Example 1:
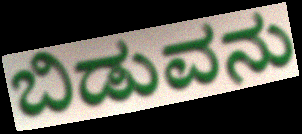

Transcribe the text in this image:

ಬಿಡುವನು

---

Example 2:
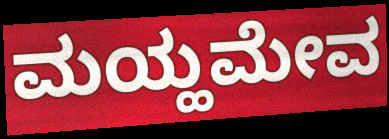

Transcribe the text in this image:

ಮಯ್ಹಮೇವ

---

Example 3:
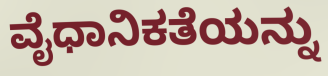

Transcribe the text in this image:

ವೈಧಾನಿಕತೆಯನ್ನು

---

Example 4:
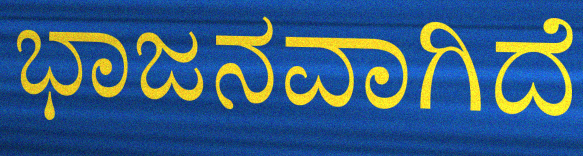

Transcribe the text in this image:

ಭಾಜನವಾಗಿದೆ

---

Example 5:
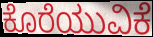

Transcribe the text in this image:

ಕೊರೆಯುವಿಕೆ